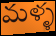
మళ్ళ